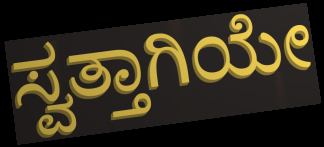
ಸ್ವತ್ತಾಗಿಯೇ